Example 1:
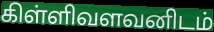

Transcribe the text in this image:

கிள்ளிவளவனிடம்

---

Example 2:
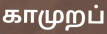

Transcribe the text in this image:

காமுறப்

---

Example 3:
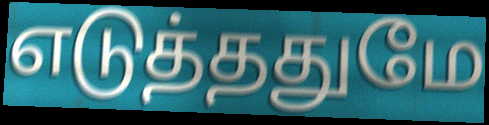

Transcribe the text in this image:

எடுத்ததுமே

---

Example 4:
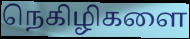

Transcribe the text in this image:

நெகிழிகளை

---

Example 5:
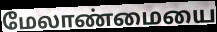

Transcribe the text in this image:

மேலாண்மையை